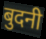
बुदनी